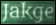
Jakge